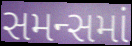
સમન્સમાં